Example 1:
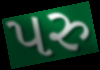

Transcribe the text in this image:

પરુ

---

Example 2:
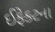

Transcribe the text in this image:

ઈફેક્ટના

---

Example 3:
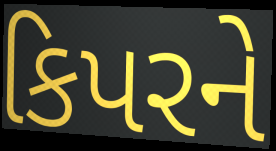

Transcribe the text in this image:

કિપરને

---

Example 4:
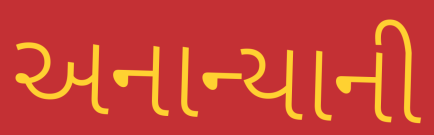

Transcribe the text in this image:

અનાન્યાની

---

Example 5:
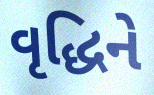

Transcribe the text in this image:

વૃદ્ધિને